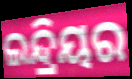
ଇନ୍ଦ୍ରିୟର